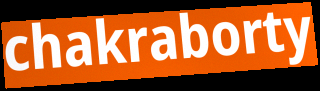
chakraborty